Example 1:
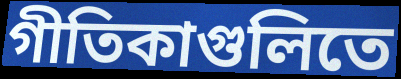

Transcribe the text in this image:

গীতিকাগুলিতে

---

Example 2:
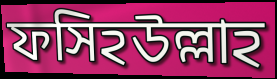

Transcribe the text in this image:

ফসিহউল্লাহ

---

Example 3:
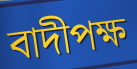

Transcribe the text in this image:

বাদীপক্ষ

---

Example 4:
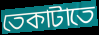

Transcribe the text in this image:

তেকাটাতে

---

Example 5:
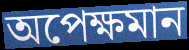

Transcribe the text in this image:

অপেক্ষমান